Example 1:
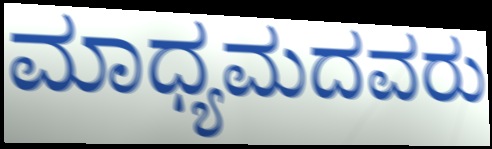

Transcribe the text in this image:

ಮಾಧ್ಯಮದವರು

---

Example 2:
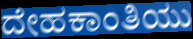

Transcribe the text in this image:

ದೇಹಕಾಂತಿಯು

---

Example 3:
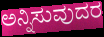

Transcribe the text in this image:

ಅನ್ನಿಸುವುದರ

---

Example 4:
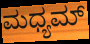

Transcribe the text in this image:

ಮಧ್ಯಮ್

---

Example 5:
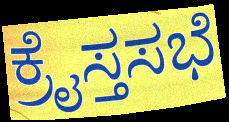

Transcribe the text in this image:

ಕ್ರೈಸ್ತಸಭೆ